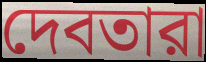
দেবতারা